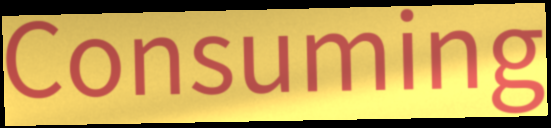
Consuming